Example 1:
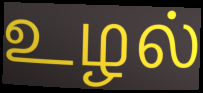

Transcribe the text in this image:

உழல்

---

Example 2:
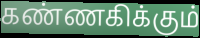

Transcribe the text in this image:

கண்ணகிக்கும்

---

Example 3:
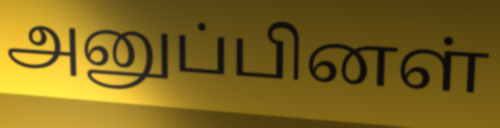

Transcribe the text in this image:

அனுப்பினள்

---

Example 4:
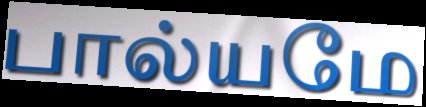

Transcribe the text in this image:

பால்யமே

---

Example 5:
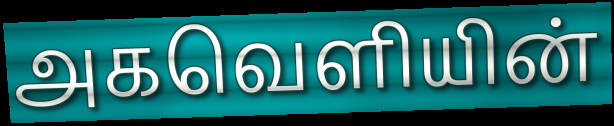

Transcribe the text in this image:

அகவெளியின்